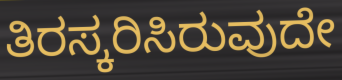
ತಿರಸ್ಕರಿಸಿರುವುದೇ